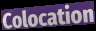
Colocation